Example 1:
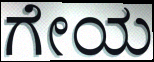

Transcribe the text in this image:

ಗೇಯ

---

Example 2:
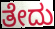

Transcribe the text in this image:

ತೇದು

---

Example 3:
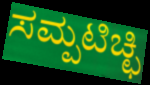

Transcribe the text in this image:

ಸಮ್ಪಟಿಚ್ಛಿ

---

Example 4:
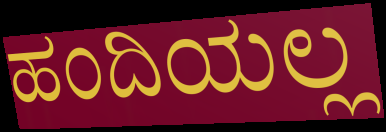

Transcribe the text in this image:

ಹಂದಿಯಲ್ಲ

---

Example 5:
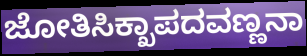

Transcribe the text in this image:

ಜೋತಿಸಿಕ್ಖಾಪದವಣ್ಣನಾ